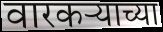
वारकऱ्याच्या